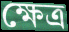
ক্ষেত্ৰ